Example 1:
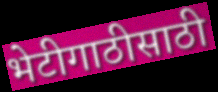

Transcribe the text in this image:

भेटीगाठीसाठी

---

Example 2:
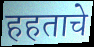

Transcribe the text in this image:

हहताचे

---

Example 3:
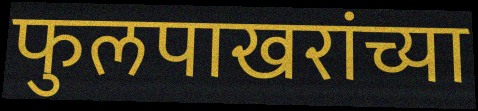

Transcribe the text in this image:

फुलपाखरांच्या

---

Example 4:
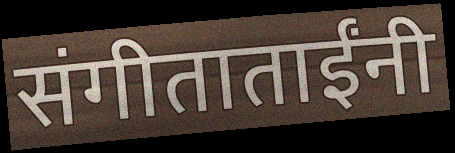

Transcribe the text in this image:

संगीताताईंनी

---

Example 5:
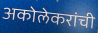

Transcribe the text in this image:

अकोलेकरांची